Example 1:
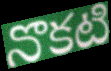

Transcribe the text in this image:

నొకటి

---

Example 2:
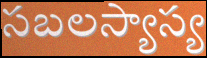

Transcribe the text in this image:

సబలస్యాస్య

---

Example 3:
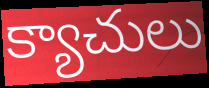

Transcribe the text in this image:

క్యాచులు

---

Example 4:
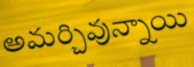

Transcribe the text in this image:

అమర్చివున్నాయి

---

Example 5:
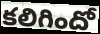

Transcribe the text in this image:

కలిగిందో